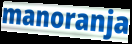
manoranja